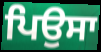
ਪਿਉਸਾ